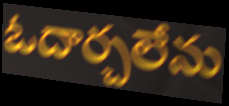
ఓదార్చలేను